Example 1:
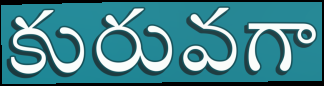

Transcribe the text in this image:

కురువగా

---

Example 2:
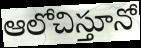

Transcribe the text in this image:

ఆలోచిస్తూనో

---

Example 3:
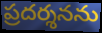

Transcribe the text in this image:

ప్రదర్శనను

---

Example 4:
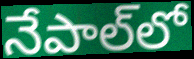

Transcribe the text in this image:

నేపాల్‌లో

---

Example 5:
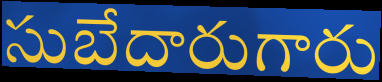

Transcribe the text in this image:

సుబేదారుగారు